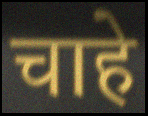
चाहे